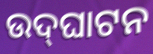
ଉଦ୍‍ଘାଟନ